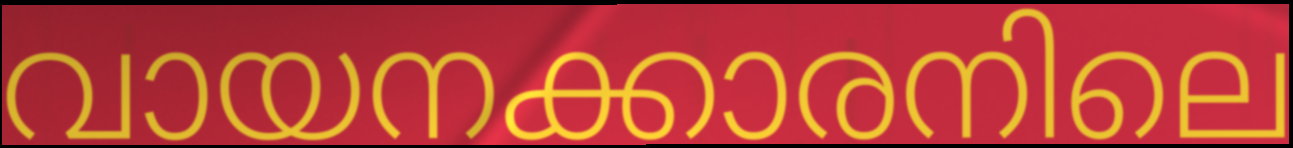
വായനക്കാരനിലെ